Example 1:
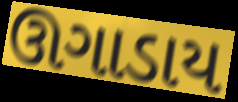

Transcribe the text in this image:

ઊગાડાય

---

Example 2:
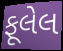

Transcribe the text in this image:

ફૂલેલ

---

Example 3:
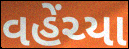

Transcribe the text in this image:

વહેંચ્યા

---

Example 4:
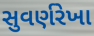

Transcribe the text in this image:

સુવર્ણરેખા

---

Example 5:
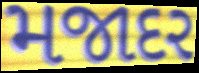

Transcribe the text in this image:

મજાદર